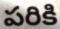
పరికి